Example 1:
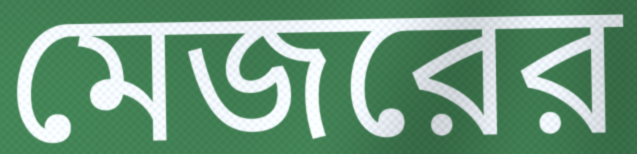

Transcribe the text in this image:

মেজরের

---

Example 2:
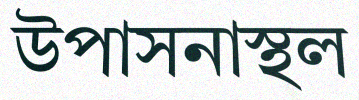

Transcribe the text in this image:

উপাসনাস্থল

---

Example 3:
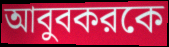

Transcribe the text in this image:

আবুবকরকে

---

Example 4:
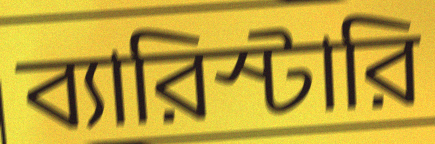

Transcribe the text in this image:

ব্যারিস্টারি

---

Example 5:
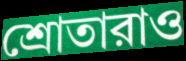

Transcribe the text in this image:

শ্রোতারাও